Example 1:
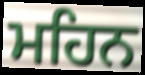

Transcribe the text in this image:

ਮਹਿਨ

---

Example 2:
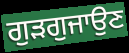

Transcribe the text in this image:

ਗੁੜਗੁਜਾਉਣ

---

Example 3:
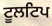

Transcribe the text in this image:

ਟੂਲਟਿਪ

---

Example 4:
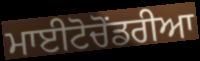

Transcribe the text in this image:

ਮਾਈਟੋਚੋਂਡਰੀਆ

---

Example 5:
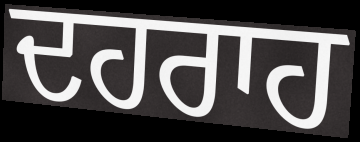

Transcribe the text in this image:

ਦਹਰਾਹ